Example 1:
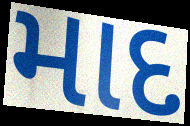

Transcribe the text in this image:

માદ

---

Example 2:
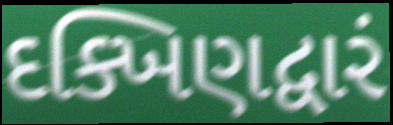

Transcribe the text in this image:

દક્ખિણદ્વારં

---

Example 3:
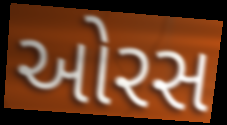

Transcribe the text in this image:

ઓરસ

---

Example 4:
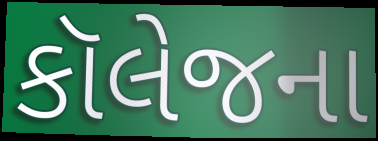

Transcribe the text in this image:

કૉલેજના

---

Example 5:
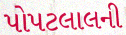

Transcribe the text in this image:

પોપટલાલની